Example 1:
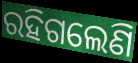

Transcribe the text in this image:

ରହିଗଲେଣି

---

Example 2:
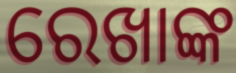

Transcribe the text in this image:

ରେଖାଙ୍କ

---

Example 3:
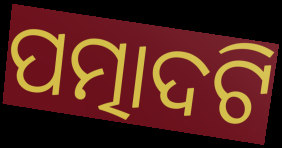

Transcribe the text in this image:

ପତ୍ମାଦଟି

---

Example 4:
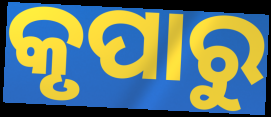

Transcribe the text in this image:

କୃପାରୁ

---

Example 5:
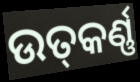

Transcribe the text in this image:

ଉତ୍‍କର୍ଣ୍ଣ